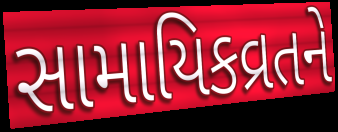
સામાયિકવ્રતને